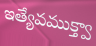
ఇత్యేవముక్త్వా